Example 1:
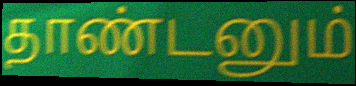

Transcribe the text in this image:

தாண்டனும்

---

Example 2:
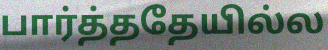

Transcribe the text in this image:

பார்த்ததேயில்ல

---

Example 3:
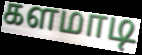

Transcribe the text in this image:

களமாடி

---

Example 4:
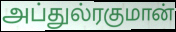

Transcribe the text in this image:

அப்துல்ரகுமான்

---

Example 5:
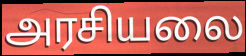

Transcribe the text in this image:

அரசியலை